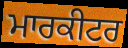
ਮਾਰਕੀਟਰ